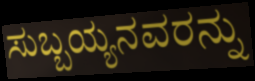
ಸುಬ್ಬಯ್ಯನವರನ್ನು